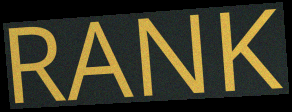
RANK